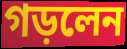
গড়লেন